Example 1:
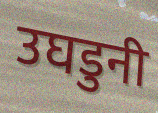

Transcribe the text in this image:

उघडुनी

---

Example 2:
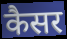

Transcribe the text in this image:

कैसर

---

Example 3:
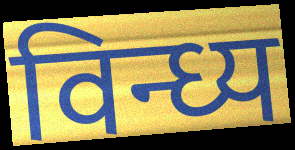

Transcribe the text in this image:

विन्ध्य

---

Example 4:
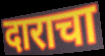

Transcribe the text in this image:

दाराचा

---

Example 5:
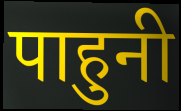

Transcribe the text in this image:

पाहुनी